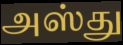
அஸ்து